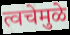
त्वचेमुळे